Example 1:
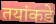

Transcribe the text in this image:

तयांकडे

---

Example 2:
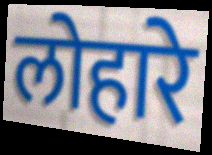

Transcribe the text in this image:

लोहारे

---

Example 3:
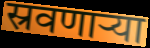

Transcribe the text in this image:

स्रवणाऱ्या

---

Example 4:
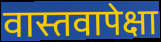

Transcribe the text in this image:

वास्तवापेक्षा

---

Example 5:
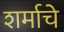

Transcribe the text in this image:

शर्माचे